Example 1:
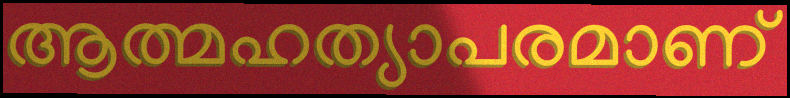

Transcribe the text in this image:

ആത്മഹത്യാപരമാണ്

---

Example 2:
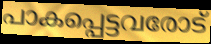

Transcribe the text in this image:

പാകപ്പെട്ടവരോട്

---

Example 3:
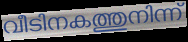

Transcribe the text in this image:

വീടിനകത്തുനിന്ന്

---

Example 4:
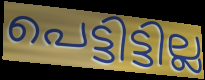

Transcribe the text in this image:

പെട്ടിട്ടില്ല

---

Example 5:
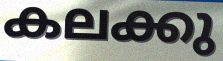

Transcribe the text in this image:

കലക്കു